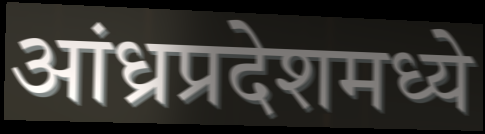
आंध्रप्रदेशमध्ये